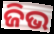
ଜିଭ